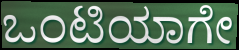
ಒಂಟಿಯಾಗೇ